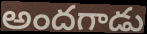
అందగాడు